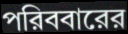
পরিববারের